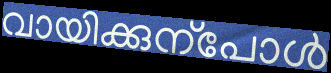
വായിക്കുന്പോൾ